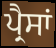
ਪ੍ਰੈਸਾਂ